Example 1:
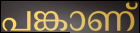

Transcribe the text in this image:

പങ്കാണ്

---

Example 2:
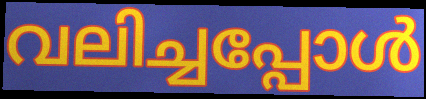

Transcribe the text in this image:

വലിച്ചപ്പോൾ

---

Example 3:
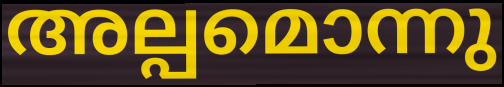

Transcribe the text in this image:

അല്പമൊന്നു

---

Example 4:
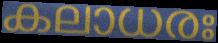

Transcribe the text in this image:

കലാധരഃ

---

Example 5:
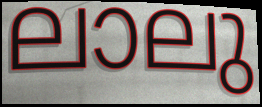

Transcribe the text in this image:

ലാലു